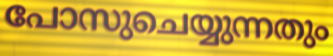
പോസുചെയ്യുന്നതും